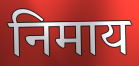
निमाय